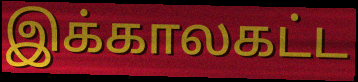
இக்காலகட்ட